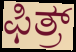
ಫಿತ್ರ್